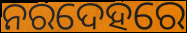
ନରଦେହରେ